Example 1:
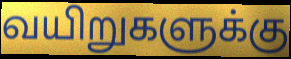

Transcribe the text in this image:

வயிறுகளுக்கு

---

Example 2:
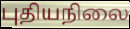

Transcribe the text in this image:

புதியநிலை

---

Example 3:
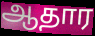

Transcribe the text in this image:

ஆதார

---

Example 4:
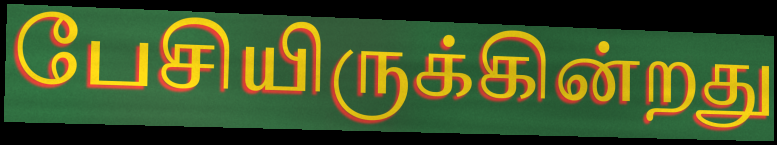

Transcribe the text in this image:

பேசியிருக்கின்றது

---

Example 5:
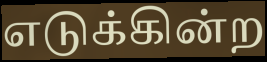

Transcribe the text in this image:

எடுக்கின்ற